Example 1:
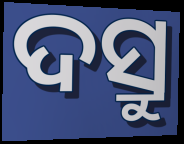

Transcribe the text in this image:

ଦସ୍ରୁ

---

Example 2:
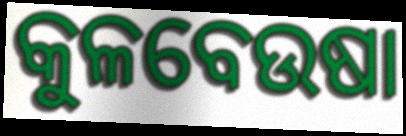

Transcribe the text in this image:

କୁଳବେଉଷା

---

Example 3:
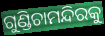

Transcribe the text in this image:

ଗୁଣ୍ଡିଚାମନ୍ଦିରକୁ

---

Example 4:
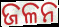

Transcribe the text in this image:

ଜଳନ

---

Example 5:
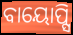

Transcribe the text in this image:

ବାୟୋପ୍ସି